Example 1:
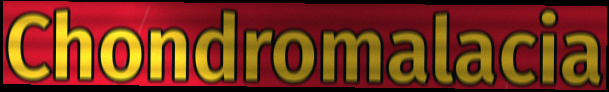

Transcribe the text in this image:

Chondromalacia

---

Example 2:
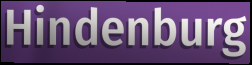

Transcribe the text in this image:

Hindenburg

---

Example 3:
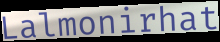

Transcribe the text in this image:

Lalmonirhat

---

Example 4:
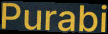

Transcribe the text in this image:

Purabi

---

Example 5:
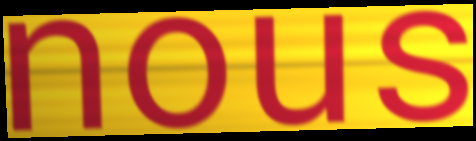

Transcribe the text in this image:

nous